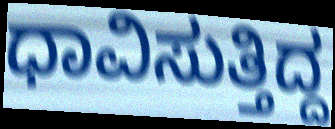
ಧಾವಿಸುತ್ತಿದ್ದ